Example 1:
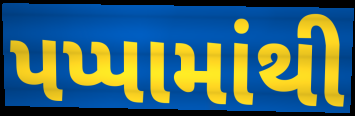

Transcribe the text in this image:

પપ્પામાંથી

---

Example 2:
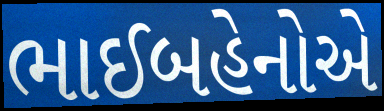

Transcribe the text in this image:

ભાઈબહેનોએ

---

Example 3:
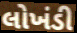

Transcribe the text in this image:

લોખંડી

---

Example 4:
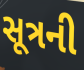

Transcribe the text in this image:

સૂત્રની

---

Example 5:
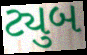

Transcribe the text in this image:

ટ્યુબ